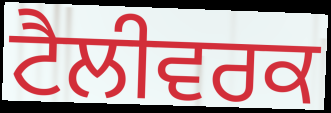
ਟੈਲੀਵਰਕ